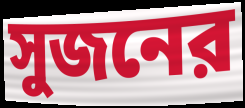
সুজনের